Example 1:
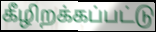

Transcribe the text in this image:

கீழிறக்கப்பட்டு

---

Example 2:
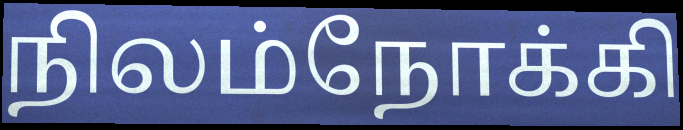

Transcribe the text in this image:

நிலம்நோக்கி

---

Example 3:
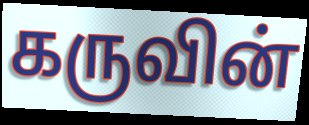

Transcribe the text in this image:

கருவின்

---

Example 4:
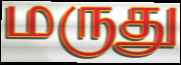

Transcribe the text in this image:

மருது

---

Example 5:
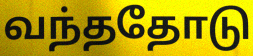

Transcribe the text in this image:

வந்ததோடு